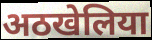
अठखेलिया